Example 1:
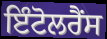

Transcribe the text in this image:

ਇੰਟੋਲਰੈਂਸ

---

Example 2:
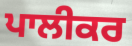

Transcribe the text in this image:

ਪਾਲੀਕਰ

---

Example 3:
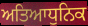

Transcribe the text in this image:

ਅਤਿਆਧੁਨਿਕ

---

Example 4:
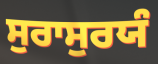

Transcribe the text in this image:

ਸੁਰਾਸੁਰਯੰ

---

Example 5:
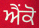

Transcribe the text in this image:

ਐਂਕੋ